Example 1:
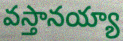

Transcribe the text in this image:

వస్తానయ్యా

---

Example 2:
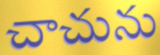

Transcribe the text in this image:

చాచును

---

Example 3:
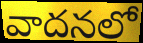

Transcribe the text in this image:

వాదనలో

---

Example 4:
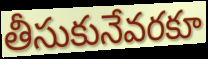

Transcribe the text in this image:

తీసుకునేవరకూ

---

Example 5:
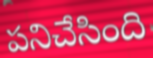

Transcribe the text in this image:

పనిచేసింది